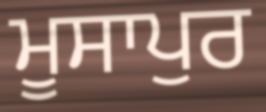
ਮੂਸਾਪੁਰ